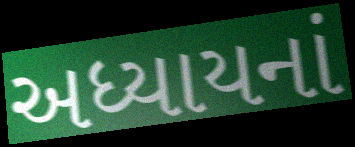
અધ્યાયનાં